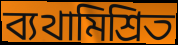
ব্যথামিশ্রিত